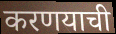
करणयाची